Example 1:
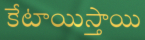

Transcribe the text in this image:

కేటాయిస్తాయి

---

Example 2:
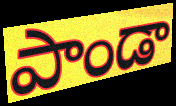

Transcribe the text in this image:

పాండా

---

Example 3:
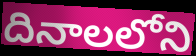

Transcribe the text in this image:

దినాలలోని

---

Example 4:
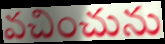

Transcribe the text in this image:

వచించును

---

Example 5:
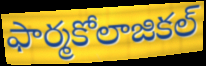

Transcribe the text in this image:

ఫార్మకోలాజికల్